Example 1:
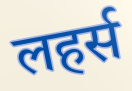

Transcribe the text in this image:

लहर्स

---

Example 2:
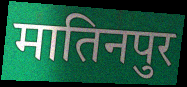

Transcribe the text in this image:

मातिनपुर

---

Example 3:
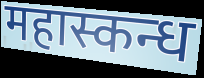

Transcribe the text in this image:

महास्कन्ध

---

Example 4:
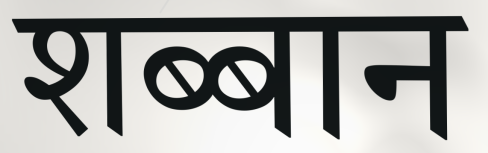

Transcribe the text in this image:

शब्बान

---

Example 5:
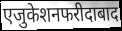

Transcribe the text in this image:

एजुकेशनफरीदाबाद